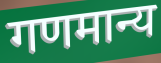
गणमान्‍य